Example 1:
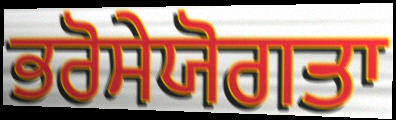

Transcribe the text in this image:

ਭਰੋਸੇਯੋਗਤਾ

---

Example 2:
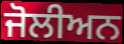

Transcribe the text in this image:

ਜੋਲੀਅਨ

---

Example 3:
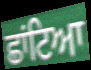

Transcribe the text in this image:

ਛਾਂਟਿਆ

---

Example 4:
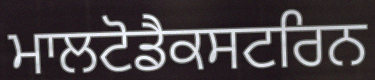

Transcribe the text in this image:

ਮਾਲਟੋਡੈਕਸਟਰਿਨ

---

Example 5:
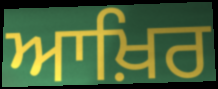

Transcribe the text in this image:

ਆਖ਼ਿਰ